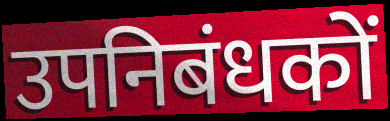
उपनिबंधकों